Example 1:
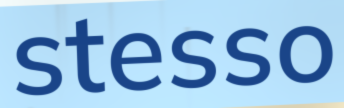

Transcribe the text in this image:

stesso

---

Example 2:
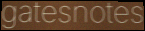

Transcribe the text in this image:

gatesnotes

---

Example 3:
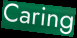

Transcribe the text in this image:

Caring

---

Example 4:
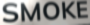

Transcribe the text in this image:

SMOKE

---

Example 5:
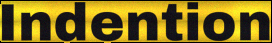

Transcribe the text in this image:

Indention